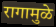
रागामुळे